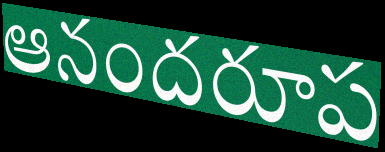
ఆనందరూప